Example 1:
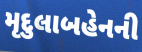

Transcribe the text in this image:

મૃદુલાબહેનની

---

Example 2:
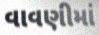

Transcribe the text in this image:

વાવણીમાં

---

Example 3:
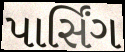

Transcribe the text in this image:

પાર્સિંગ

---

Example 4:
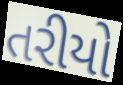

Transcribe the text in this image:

તરીયો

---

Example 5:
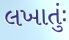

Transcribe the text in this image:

લખાતુંઃ